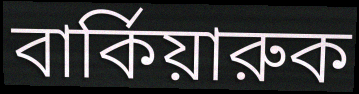
বার্কিয়ারুক